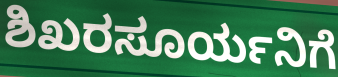
ಶಿಖರಸೂರ್ಯನಿಗೆ